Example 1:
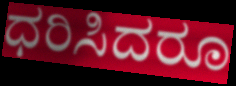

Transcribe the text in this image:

ಧರಿಸಿದರೂ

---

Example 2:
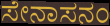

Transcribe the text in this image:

ಸೇನಾಸನಂ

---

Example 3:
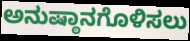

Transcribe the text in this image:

ಅನುಷ್ಠಾನಗೊಳಿಸಲು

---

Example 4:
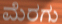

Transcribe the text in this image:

ಮೆರಗು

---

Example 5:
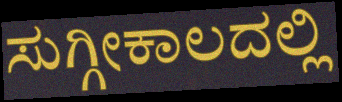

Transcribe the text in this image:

ಸುಗ್ಗೀಕಾಲದಲ್ಲಿ